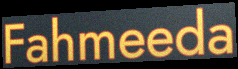
Fahmeeda